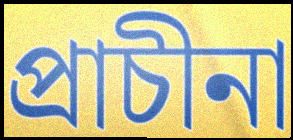
প্রাচীনা